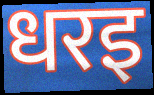
धरइ